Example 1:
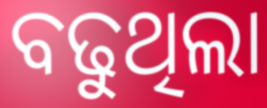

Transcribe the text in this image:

ବଢୁଥିଲା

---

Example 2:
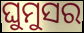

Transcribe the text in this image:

ଘୁମୁସର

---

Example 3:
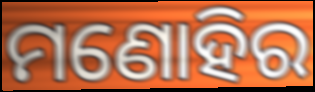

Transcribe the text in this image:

ମଣୋହିର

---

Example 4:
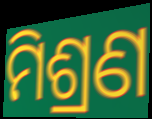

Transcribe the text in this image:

ମିଶ୍ରଣ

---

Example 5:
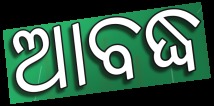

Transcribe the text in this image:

ଆବଦ୍ଧ